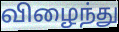
விழைந்து